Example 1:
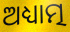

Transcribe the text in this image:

ଅଧ୍ୟାତ୍ମ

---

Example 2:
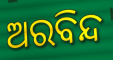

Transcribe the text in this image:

ଅରବିନ୍ଦ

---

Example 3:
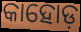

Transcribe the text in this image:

କାହୋଡ଼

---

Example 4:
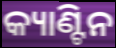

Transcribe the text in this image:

କ୍ୟାଣ୍ଟିନ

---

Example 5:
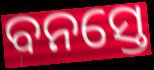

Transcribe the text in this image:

ବନସ୍ତେ